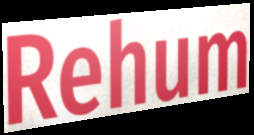
Rehum